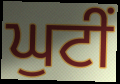
ਘੁਟੀਂ